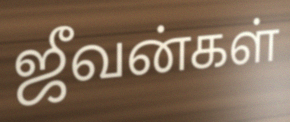
ஜீவன்கள்